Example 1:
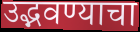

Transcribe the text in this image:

उद्भवण्याचा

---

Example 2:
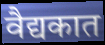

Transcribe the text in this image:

वैद्यकात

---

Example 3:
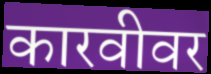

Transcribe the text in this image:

कारवीवर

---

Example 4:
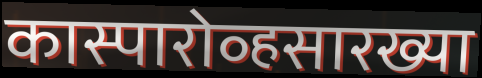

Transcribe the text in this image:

कास्पारोव्हसारख्या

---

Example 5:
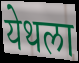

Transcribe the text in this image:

येथला